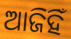
ଆଜିହିଁ